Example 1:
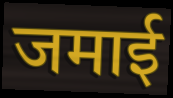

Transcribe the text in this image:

जमाई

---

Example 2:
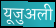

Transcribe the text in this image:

यूजुअली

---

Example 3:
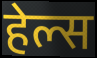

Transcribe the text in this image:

हेल्स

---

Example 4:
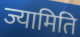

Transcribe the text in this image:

ज्यामिति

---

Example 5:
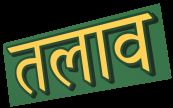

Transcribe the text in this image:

तलाव